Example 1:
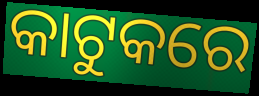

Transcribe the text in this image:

କାଟୁକରେ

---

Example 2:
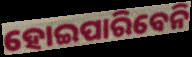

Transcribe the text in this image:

ହୋଇପାରିବେନି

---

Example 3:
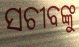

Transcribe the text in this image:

ସଚୀବଙ୍କୁ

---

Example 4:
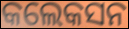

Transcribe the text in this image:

କଲେକସନ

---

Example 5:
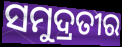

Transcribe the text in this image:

ସମୁଦ୍ରତୀର